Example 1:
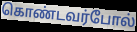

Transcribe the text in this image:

கொண்டவர்போல்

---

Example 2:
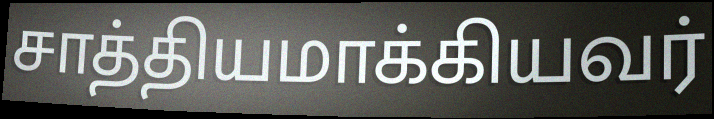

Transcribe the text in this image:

சாத்தியமாக்கியவர்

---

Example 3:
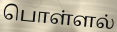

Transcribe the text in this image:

பொள்ளல்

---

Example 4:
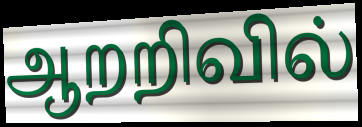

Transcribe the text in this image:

ஆறறிவில்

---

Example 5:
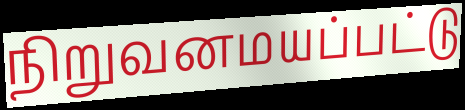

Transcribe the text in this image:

நிறுவனமயப்பட்டு